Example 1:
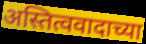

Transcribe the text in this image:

अस्तित्ववादाच्या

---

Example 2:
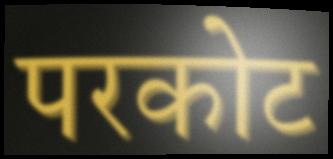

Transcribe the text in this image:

परकोट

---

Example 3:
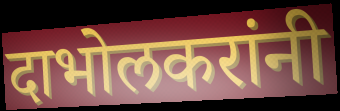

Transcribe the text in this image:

दाभोलकरांनी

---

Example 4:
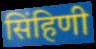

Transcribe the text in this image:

सिंहिणी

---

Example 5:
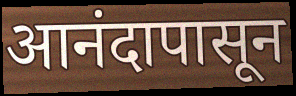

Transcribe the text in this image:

आनंदापासून